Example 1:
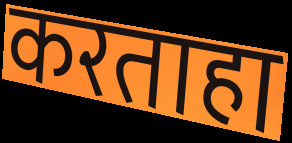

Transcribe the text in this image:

करताहा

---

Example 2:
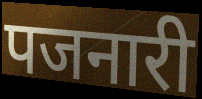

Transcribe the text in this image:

पजनारी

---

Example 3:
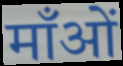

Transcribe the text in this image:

माँओं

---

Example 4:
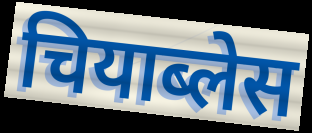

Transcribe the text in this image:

चियाब्लेस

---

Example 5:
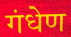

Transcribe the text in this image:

गंधेण